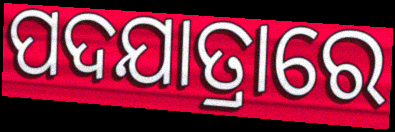
ପଦଯାତ୍ରାରେ